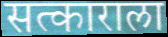
सत्काराला